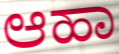
ಆಹಾ